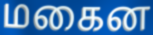
மகைன